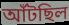
আঁটছিল